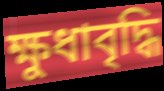
ক্ষুধাবৃদ্ধি